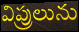
విప్రులును